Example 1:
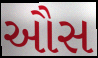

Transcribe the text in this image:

ઔસ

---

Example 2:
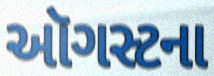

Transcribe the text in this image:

ઑગસ્ટના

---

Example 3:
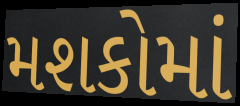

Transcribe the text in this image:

મશકોમાં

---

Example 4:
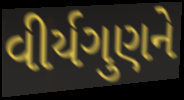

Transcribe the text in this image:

વીર્યગુણને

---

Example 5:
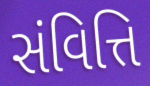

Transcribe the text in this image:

સંવિત્તિ